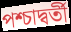
পশ্চাদ্বর্তী